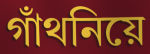
গাঁথনিয়ে